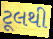
ટૂલથી